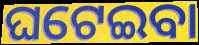
ଘଟେଇବା